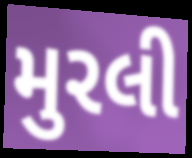
મુરલી